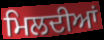
ਮਿਲਦੀਆਂ